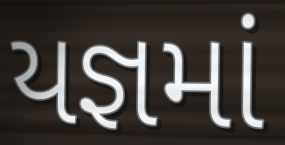
યજ્ઞમાં